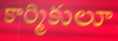
కార్మికులూ